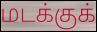
மடக்குக்